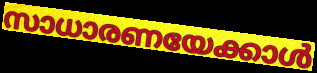
സാധാരണയേക്കാൾ